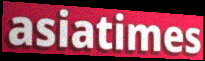
asiatimes